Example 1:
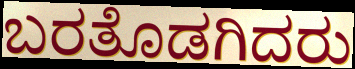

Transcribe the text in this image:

ಬರತೊಡಗಿದರು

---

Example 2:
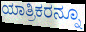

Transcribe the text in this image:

ಯಾತ್ರಿಕರನ್ನೂ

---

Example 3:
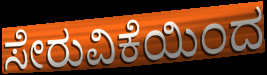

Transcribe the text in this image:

ಸೇರುವಿಕೆಯಿಂದ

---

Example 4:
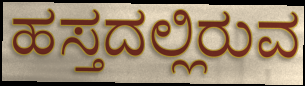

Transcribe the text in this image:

ಹಸ್ತದಲ್ಲಿರುವ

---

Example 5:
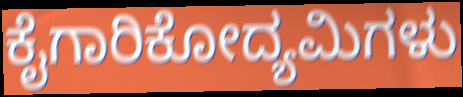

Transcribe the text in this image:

ಕೈಗಾರಿಕೋದ್ಯಮಿಗಳು